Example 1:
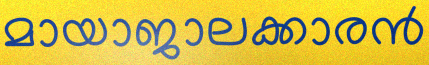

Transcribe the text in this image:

മായാജാലക്കാരൻ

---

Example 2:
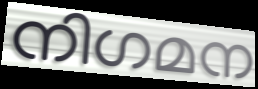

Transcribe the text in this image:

നിഗമന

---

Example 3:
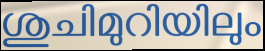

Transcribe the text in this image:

ശുചിമുറിയിലും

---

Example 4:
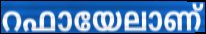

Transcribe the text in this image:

റഫായേലാണ്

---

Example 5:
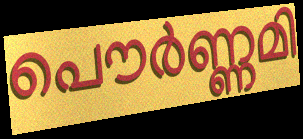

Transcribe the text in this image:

പൌർണ്ണമി